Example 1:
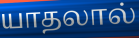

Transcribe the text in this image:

யாதலால்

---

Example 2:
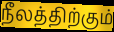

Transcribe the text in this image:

நீலத்திற்கும்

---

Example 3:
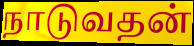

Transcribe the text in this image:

நாடுவதன்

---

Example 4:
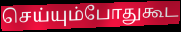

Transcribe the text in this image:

செய்யும்போதுகூட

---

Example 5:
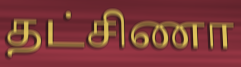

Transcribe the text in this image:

தட்சிணா